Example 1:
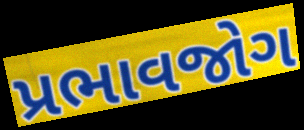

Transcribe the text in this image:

પ્રભાવજોગ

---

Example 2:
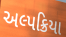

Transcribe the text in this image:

અલ્પક્રિયા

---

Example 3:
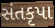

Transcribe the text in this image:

સંતકૃપા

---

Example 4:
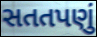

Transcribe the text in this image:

સતતપણું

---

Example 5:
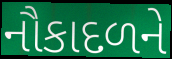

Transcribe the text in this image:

નૌકાદળને